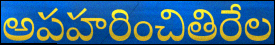
అపహరించితిరేల